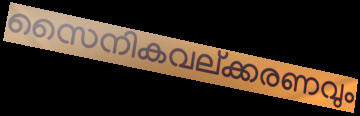
സൈനികവല്ക്കരണവും